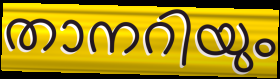
താനറിയും